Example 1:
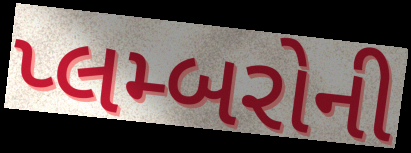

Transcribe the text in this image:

પ્લમ્બરોની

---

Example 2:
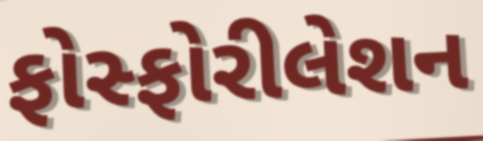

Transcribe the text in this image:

ફોસ્ફોરીલેશન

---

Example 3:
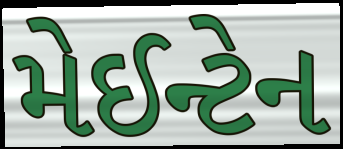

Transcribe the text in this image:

મેઈન્ટેન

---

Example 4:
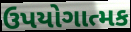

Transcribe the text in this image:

ઉપયોગાત્મક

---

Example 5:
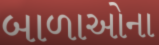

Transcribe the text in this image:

બાળાઓના